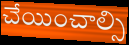
చేయించాల్సి